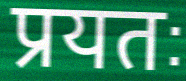
प्रयतः